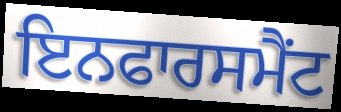
ਇਨਫਾਰਸਮੈਂਟ